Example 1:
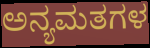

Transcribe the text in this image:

ಅನ್ಯಮತಗಳ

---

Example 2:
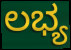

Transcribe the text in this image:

ಲಭ್ಯ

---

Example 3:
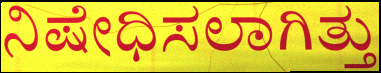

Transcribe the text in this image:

ನಿಷೇಧಿಸಲಾಗಿತ್ತು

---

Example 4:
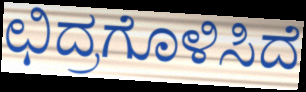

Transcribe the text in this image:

ಛಿದ್ರಗೊಳಿಸಿದೆ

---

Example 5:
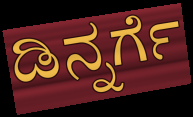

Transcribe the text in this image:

ಡಿನ್ನರ್ಗೆ